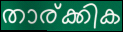
താര്ക്കിക